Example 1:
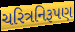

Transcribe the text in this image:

ચરિત્રનિરૂપણ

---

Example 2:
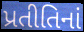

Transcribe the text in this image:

પ્રતીતિનાં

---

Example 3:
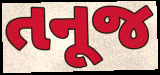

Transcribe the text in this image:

તનૂજ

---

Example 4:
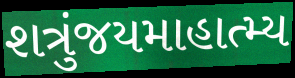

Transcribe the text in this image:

શત્રુંજયમાહાત્મ્ય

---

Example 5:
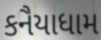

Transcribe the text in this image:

કનૈયાધામ